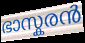
ഭാസ്കരൻ